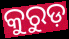
କୁରୁଡ଼